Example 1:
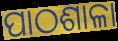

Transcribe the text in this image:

ପାଠଶାଳା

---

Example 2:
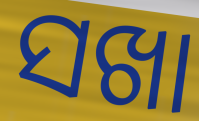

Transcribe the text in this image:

ସଖା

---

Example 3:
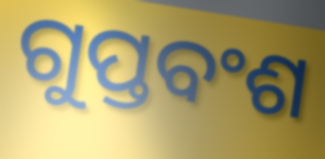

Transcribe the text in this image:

ଗୁପ୍ତବଂଶ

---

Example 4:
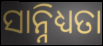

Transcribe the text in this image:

ସାନ୍ନିଧ୍ୟତା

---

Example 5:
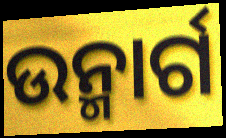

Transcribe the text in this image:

ଉନ୍ମାର୍ଗ